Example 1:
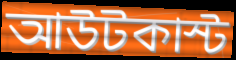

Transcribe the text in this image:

আউটকাস্ট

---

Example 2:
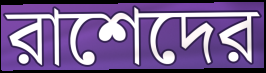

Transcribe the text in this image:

রাশেদের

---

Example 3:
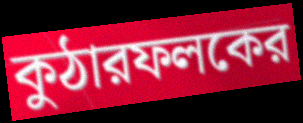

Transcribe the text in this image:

কুঠারফলকের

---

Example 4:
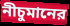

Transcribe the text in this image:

নীচুমানের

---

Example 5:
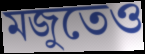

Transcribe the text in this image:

মজুতেও